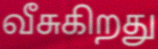
வீசுகிறது